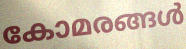
കോമരങ്ങൾ